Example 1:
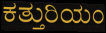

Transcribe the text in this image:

ಕತ್ತುರಿಯಂ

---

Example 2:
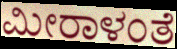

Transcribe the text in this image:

ಮೀರಾಳಂತೆ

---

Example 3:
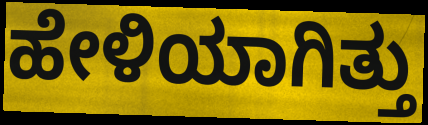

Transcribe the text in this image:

ಹೇಳಿಯಾಗಿತ್ತು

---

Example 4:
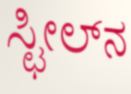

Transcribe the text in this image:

ಸ್ಟೀಲ್‌ನ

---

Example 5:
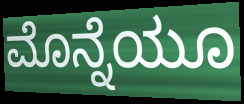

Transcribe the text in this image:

ಮೊನ್ನೆಯೂ